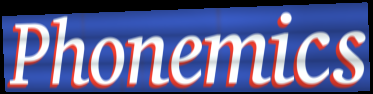
Phonemics